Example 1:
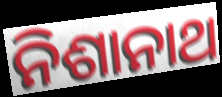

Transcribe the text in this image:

ନିଶାନାଥ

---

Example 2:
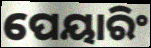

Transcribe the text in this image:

ପେୟାରିଂ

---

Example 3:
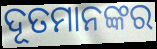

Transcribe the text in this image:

ଦୂତମାନଙ୍କର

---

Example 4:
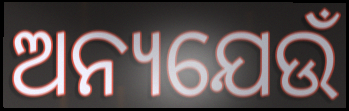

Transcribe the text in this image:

ଅନ୍ୟଯେଉଁ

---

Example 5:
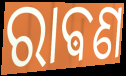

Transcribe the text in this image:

ରାଵଣ